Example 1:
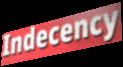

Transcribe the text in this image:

Indecency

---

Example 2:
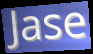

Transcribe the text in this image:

Jase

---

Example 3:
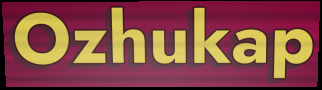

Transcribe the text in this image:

Ozhukap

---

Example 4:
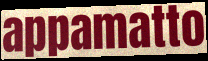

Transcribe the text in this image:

appamatto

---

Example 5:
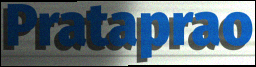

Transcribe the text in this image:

Prataprao